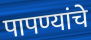
पापण्यांचे